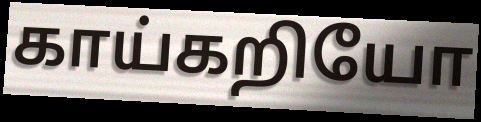
காய்கறியோ